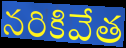
నరికివేత